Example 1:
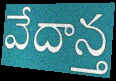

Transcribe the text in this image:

వేదాన్త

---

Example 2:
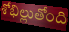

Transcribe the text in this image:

శోభిల్లుతోంది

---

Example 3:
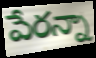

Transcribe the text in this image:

పేరన్నా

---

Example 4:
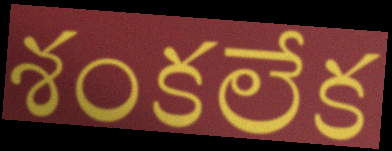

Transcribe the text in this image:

శంకలేక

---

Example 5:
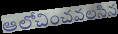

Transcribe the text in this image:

ఆలోచించవలసిన